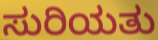
ಸುರಿಯತು